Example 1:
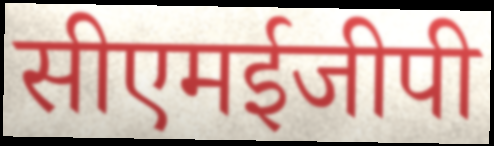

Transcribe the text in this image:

सीएमईजीपी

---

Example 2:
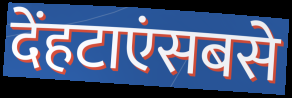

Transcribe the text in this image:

देंहटाएंसबसे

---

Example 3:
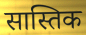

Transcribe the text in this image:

सास्तिक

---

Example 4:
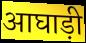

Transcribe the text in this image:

आघाड़ी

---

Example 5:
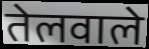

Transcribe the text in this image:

तेलवाले